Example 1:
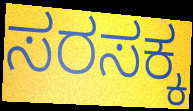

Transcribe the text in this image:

ಸರಸಕ್ಕ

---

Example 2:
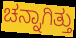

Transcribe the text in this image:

ಚನ್ನಾಗಿತ್ತು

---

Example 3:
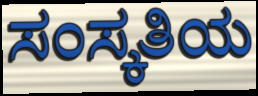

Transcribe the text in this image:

ಸಂಸ್ಕತಿಯ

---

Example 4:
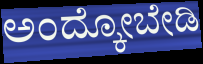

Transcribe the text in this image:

ಅಂದ್ಕೋಬೇಡಿ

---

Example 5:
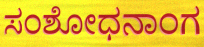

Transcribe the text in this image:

ಸಂಶೋಧನಾಂಗ